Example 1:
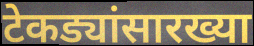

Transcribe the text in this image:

टेकड्यांसारख्या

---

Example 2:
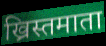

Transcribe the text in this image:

ख्रिस्तमाता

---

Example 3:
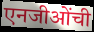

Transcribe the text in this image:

एनजीओंची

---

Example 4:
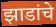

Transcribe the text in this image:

झाडांचे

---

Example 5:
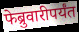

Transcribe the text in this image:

फेब्रुवारीपर्यंत